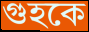
গুহকে